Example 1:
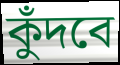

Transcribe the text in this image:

কুঁদবে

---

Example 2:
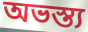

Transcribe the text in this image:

অভস্ত্য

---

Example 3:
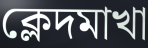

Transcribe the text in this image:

ক্লেদমাখা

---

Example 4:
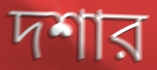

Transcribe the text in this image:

দশার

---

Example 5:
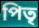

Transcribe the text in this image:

পিতৃ